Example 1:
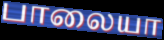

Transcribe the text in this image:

பாலையா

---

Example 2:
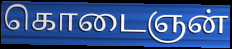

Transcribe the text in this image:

கொடைஞன்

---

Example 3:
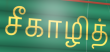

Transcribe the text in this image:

சீகாழித்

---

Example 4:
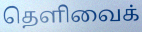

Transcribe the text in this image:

தெளிவைக்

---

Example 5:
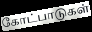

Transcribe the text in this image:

கோட்பாடுகள்